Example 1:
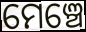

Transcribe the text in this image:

ମେଞ୍ଚେ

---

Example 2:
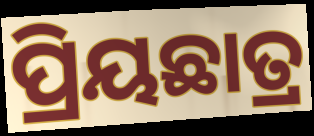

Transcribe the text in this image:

ପ୍ରିୟଛାତ୍ର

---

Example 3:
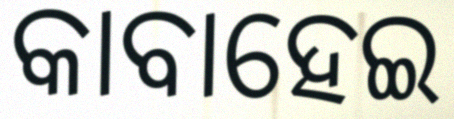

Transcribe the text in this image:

କାବାହେଇ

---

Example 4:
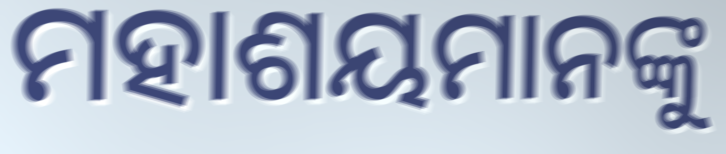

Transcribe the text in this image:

ମହାଶୟମାନଙ୍କୁ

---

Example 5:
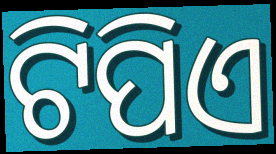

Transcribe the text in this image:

ଟିପିଏ